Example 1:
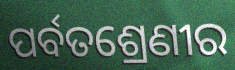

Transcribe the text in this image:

ପର୍ବତଶ୍ରେଣୀର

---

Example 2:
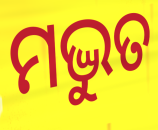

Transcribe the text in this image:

ମଦ୍ଭୁତ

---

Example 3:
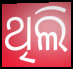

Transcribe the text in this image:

ଥିଲି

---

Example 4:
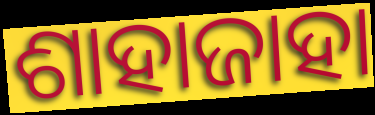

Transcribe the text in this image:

ଶାହାଜାହା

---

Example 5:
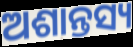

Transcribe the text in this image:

ଅଶାନ୍ତସ୍ୟ